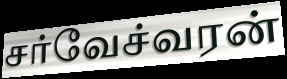
சர்வேச்வரன்